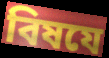
বিষযে